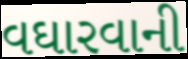
વઘારવાની